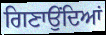
ਗਿਣਾਉਂਦਿਆਂ